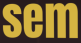
sem